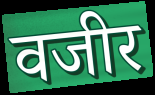
वजीर